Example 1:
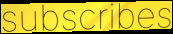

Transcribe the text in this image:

subscribes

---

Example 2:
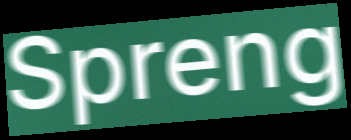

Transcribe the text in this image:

Spreng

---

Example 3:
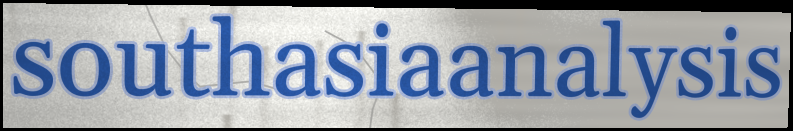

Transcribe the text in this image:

southasiaanalysis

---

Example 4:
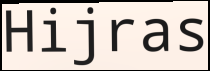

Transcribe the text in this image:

Hijras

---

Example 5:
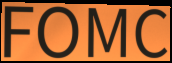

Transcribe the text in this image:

FOMC